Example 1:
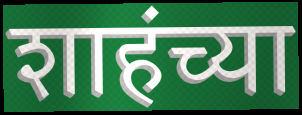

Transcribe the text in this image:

शाहंच्या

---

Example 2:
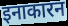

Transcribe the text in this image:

इनाकारन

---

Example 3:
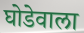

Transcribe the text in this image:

घोडेवाला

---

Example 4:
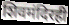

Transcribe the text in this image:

शिवमंदिरही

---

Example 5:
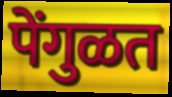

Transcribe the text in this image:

पेंगुळत